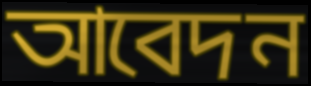
আবেদন